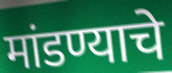
मांडण्याचे